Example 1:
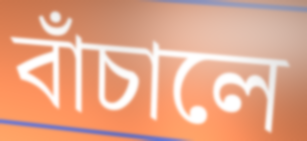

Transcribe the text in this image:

বাঁচালে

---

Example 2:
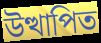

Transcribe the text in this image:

উত্থাপিত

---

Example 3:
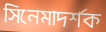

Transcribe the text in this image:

সিনেমাদর্শক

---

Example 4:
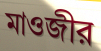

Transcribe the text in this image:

মাওজীর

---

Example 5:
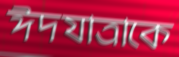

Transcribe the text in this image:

ঈদযাত্রাকে